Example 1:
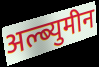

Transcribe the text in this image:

अल्ब्युमीन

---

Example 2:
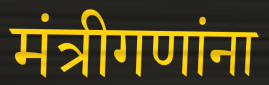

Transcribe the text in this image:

मंत्रीगणांना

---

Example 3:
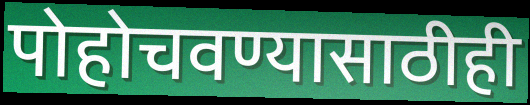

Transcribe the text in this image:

पोहोचवण्यासाठीही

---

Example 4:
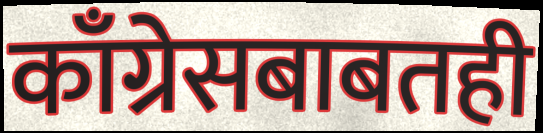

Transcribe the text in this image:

काँग्रेसबाबतही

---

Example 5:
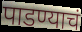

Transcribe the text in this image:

पाडण्याचं